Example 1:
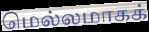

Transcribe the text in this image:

மெல்லமாகக்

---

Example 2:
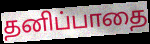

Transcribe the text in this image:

தனிப்பாதை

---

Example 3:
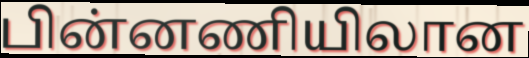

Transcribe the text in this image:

பின்னணியிலான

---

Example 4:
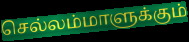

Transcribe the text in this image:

செல்லம்மாளுக்கும்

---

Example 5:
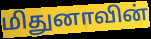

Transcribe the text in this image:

மிதுனாவின்